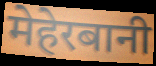
मेहेरबानी